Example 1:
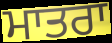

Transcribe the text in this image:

ਮਾਤਰਾ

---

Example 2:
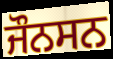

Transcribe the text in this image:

ਜੌਨਸਨ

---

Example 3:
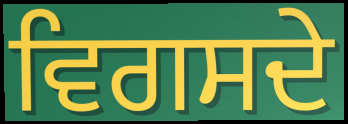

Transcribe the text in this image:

ਵਿਗਸਦੇ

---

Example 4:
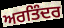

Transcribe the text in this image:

ਅਰਤਿੰਦਰ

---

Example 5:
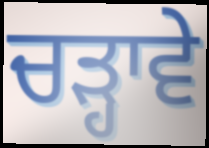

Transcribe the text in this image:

ਚੜ੍ਹਾਵੇ